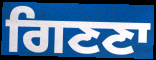
ਗਿਣਣਾ